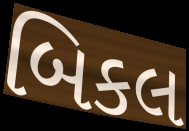
બિકલ